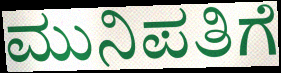
ಮುನಿಪತಿಗೆ